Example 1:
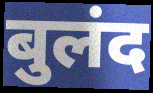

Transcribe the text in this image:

बुलंद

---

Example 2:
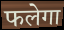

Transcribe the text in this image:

फलेगा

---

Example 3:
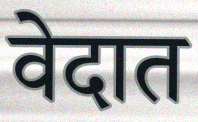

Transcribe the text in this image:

वेदात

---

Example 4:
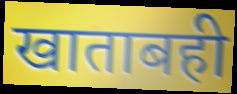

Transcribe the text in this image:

खाताबही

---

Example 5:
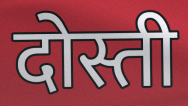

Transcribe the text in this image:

दोस्ती